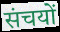
संचयों